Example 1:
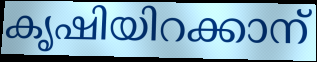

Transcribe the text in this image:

കൃഷിയിറക്കാന്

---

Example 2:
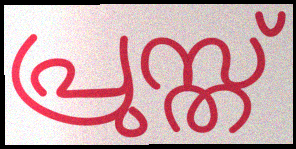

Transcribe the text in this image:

പ്രുസ്ത്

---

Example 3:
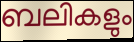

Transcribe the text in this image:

ബലികളും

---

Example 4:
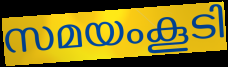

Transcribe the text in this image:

സമയംകൂടി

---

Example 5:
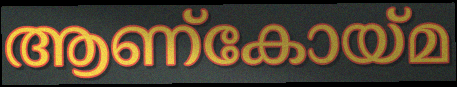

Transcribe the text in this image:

ആണ്കോയ്മ